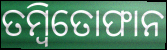
ତମ୍ବିତୋଫାନ